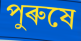
পুৰুষে